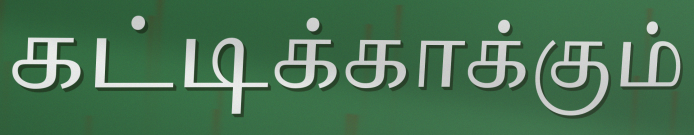
கட்டிக்காக்கும்